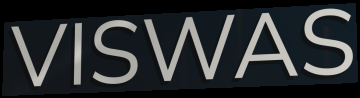
VISWAS